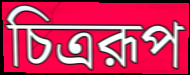
চিত্ররূপ